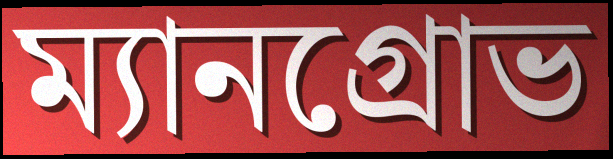
ম্যানগ্রোভ